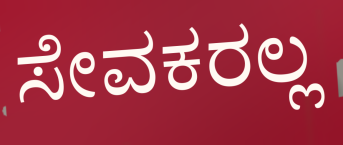
ಸೇವಕರಲ್ಲ